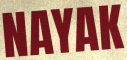
NAYAK